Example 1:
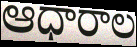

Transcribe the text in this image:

ఆధారాల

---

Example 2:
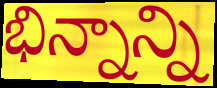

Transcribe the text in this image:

భిన్నాన్ని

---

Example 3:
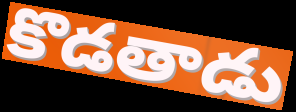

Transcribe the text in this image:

కొడతాడు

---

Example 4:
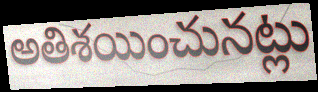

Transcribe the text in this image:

అతిశయించునట్లు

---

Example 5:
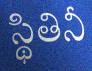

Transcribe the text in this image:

స్థితినీ